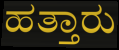
ಹತ್ತಾರು